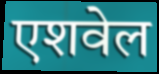
एशवेल